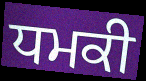
ਧਮਕੀ